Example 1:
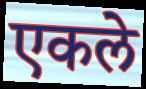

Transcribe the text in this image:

एकले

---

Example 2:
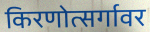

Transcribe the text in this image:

किरणोत्सर्गावर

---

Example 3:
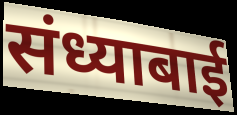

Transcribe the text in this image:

संध्याबाई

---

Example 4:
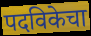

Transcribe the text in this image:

पदविकेचा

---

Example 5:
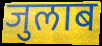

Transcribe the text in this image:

जुलाब